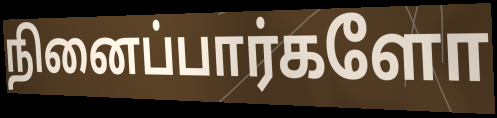
நினைப்பார்களோ